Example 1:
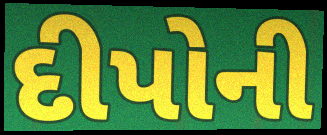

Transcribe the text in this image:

દીપોની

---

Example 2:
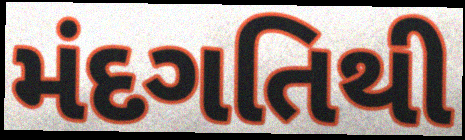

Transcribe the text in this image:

મંદગતિથી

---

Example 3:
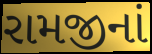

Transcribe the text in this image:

રામજીનાં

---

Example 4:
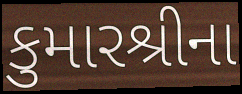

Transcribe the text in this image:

કુમારશ્રીના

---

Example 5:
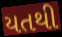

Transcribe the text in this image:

યતથી